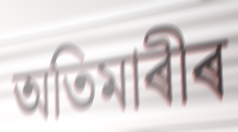
অতিমাৰীৰ